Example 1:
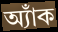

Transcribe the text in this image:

অ্যাঁক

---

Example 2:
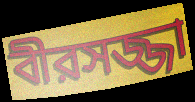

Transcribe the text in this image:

বীরসজ্জা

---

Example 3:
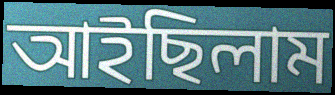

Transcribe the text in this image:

আইছিলাম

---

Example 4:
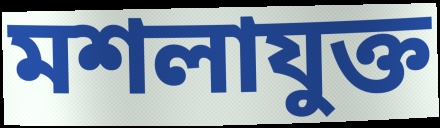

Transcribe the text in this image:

মশলাযুক্ত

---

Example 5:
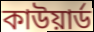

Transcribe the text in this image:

কাউয়ার্ড